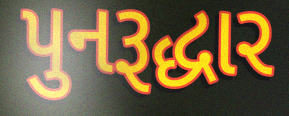
પુનરૂદ્ધાર